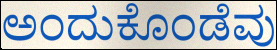
ಅಂದುಕೊಂಡೆವು